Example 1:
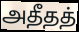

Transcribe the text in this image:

அதீதத்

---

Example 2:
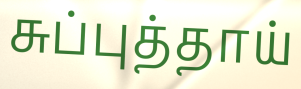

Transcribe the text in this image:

சுப்புத்தாய்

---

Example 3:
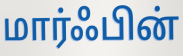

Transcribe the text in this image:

மார்ஃபின்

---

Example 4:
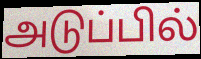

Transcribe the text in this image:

அடுப்பில்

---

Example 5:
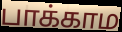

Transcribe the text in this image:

பாக்காம